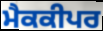
ਮੈਕਕੀਪਰ